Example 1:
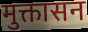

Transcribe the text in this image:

मुक्तासन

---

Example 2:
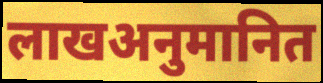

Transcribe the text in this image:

लाखअनुमानित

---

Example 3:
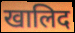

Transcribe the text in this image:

खालिद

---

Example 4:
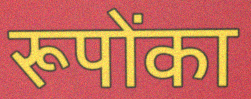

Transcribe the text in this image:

रूपोंका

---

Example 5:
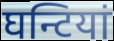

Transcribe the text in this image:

घन्टियां